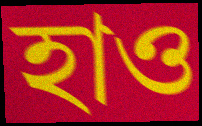
হাও